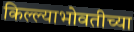
किल्ल्याभोवतीच्या